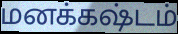
மனக்கஷ்டம்